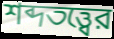
শব্দতত্ত্বের